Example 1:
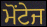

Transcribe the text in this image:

ਮੋਂਟੇਜ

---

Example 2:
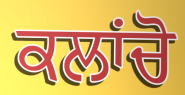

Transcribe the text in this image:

ਕਲਾਂਚੋ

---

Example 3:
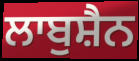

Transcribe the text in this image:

ਲਾਬੁਸ਼ੈਨ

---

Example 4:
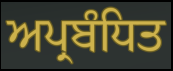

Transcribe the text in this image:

ਅਪ੍ਰਬੰਧਿਤ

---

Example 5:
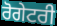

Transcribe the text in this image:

ਰੋਗੇਟਰੀ